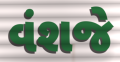
વંશજે